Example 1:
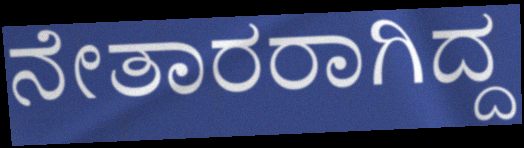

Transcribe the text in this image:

ನೇತಾರರಾಗಿದ್ದ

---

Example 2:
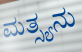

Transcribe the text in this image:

ಮತ್ಸ್ಯನು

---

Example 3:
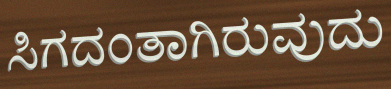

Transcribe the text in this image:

ಸಿಗದಂತಾಗಿರುವುದು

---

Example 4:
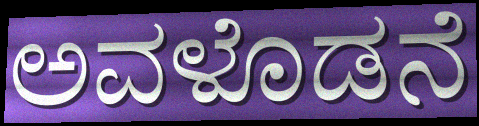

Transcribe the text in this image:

ಅವಳೊಡನೆ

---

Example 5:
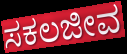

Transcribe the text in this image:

ಸಕಲಜೀವ